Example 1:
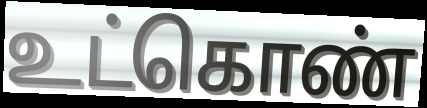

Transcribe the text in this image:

உட்கொண்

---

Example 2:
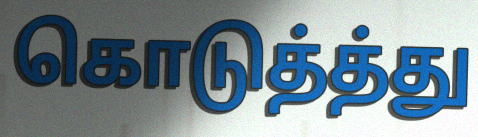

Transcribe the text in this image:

கொடுத்த்து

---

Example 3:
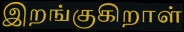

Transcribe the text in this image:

இறங்குகிறாள்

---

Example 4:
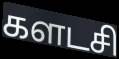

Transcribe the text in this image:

களடசி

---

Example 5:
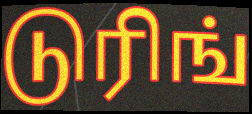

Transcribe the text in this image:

டுரிங்